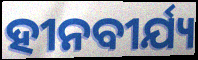
ହୀନବୀର୍ଯ୍ୟ